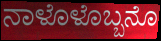
ನಾಳೊಳೊಬ್ಬನೊ